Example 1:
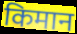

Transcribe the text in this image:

किमान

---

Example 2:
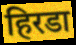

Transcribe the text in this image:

हिरडा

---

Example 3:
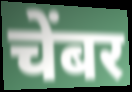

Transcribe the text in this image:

चेंबर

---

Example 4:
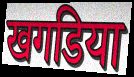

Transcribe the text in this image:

खगडिया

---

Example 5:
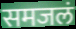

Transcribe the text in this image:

समजलं